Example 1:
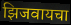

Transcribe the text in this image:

झिजवायचा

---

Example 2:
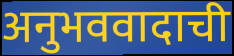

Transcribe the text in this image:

अनुभववादाची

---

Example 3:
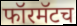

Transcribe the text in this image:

फॉरमॅटच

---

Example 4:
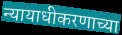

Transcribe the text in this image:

न्यायाधीकरणाच्या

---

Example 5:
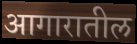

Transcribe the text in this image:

आगारातील